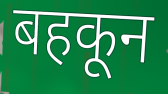
बहकून